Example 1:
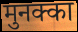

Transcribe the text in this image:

मुनक्का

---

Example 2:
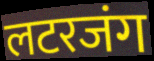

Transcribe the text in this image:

लटरजंग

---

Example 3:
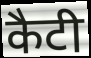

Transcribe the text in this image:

कैटी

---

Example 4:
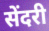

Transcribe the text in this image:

सेंदरी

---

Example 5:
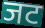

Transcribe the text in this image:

जट